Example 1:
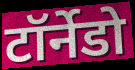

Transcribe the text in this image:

टॉर्नेडो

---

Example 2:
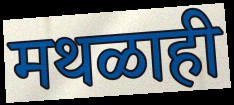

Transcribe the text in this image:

मथळाही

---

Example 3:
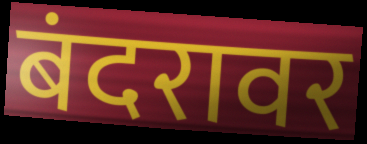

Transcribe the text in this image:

बंदरावर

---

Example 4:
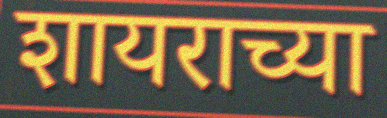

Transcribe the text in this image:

शायराच्या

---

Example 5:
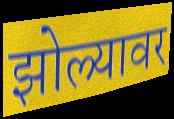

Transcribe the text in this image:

झोल्यावर